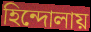
হিন্দোলায়